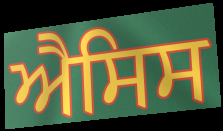
ਐਸਿਸ